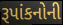
રૂપાંકનોની